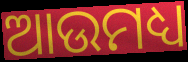
ଆଉମଧ୍ୟ